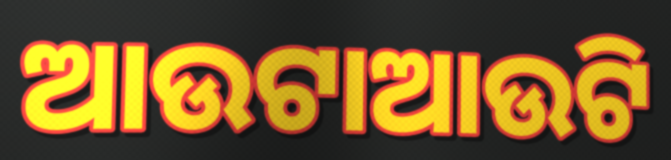
ଆଉଟାଆଉଟି